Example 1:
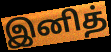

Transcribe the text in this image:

இனித்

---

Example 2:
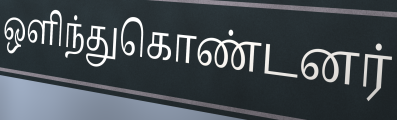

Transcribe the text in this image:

ஒளிந்துகொண்டனர்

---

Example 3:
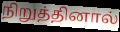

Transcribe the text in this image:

நிறுத்தினால்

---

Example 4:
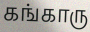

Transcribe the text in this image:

கங்காரு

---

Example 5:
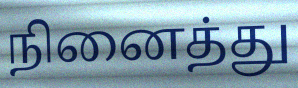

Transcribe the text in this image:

நினைத்து